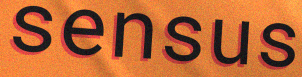
sensus